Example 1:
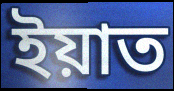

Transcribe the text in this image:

ইয়াত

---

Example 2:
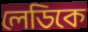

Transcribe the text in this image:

লেডিকে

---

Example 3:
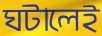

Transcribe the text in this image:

ঘটালেই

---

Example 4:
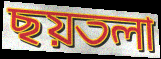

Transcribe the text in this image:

ছয়তলা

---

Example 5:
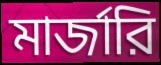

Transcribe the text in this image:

মার্জারি